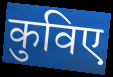
कुविए